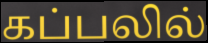
கப்பலில்